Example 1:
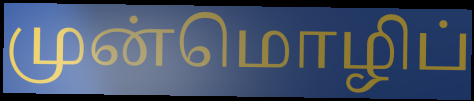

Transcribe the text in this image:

முன்மொழிப்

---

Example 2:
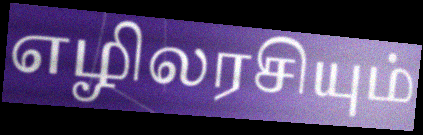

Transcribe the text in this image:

எழிலரசியும்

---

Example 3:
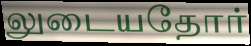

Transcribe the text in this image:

லுடையதோர்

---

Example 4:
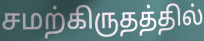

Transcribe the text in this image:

சமற்கிருதத்தில்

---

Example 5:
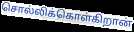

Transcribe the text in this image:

சொல்லிக்கொள்கிறான்